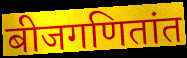
बीजगणितांत